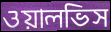
ওয়ালভিস